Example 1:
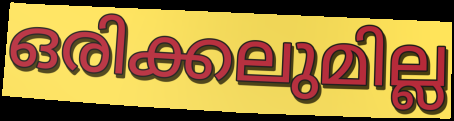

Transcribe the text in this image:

ഒരിക്കലുമില്ല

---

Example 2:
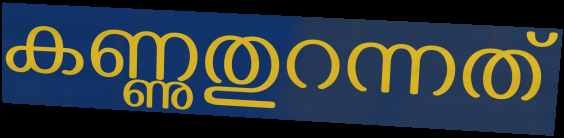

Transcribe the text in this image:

കണ്ണുതുറന്നത്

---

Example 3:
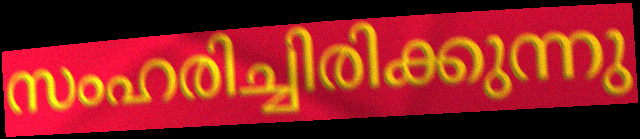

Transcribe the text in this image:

സംഹരിച്ചിരിക്കുന്നു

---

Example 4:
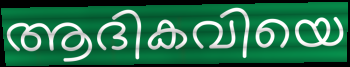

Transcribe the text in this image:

ആദികവിയെ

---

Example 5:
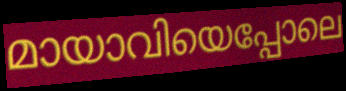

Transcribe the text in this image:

മായാവിയെപ്പോലെ